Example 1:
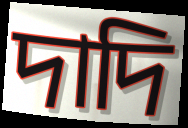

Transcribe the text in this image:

দাদি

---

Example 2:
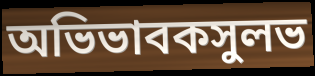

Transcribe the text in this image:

অভিভাবকসুলভ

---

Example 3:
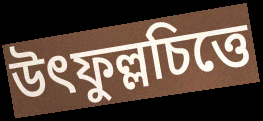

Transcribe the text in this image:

উৎফুল্লচিত্তে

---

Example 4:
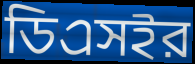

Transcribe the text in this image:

ডিএসইর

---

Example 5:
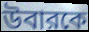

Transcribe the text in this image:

উবারকে